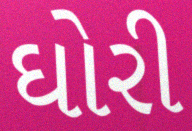
ઘોરી